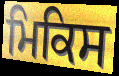
ਮਿਕਿਸ